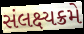
સંલક્ષ્યક્રમે